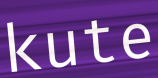
kute